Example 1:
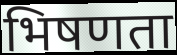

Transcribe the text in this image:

भिषणता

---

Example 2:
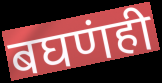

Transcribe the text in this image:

बघणंही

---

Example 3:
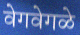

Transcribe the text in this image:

वेगवेगळे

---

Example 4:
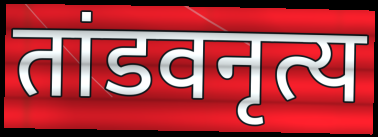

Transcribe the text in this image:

तांडवनृत्य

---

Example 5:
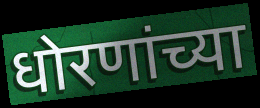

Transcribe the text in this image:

धोरणांच्या